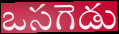
ఒసగెడు